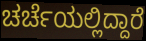
ಚರ್ಚೆಯಲ್ಲಿದ್ದಾರೆ